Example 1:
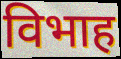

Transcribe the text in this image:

विभाह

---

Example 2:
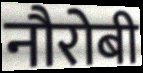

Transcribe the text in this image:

नौरोबी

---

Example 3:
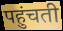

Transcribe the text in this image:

पहुंचती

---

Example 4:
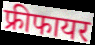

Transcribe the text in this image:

फ्रीफायर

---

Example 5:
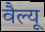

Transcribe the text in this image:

वैल्यू